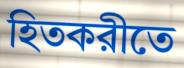
হিতকরীতে